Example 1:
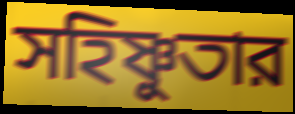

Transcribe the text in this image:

সহিষ্ণুতার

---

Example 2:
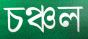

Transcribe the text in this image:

চঞ্চল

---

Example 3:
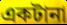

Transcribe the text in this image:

একটানা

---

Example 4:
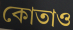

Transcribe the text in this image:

কোতাও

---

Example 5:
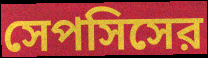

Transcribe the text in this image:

সেপসিসের